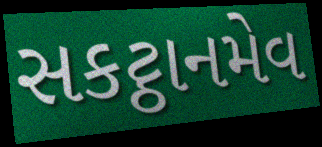
સકટ્ઠાનમેવ